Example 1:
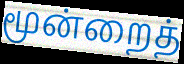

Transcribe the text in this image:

மூன்றைத்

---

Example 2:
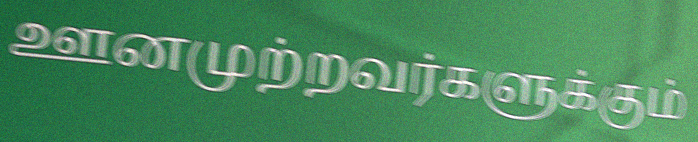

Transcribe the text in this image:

ஊனமுற்றவர்களுக்கும்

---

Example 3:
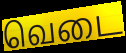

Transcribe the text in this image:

வெடை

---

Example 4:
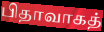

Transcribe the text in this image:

பிதாவாகத்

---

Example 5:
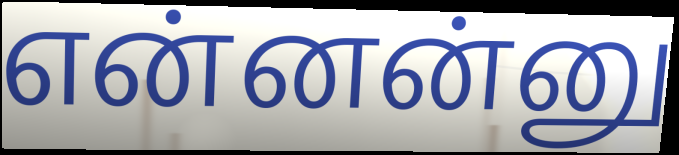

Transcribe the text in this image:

என்னன்னு